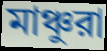
মাঞ্চুরা